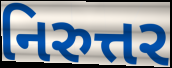
નિરુત્તર